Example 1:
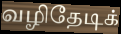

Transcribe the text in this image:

வழிதேடிக்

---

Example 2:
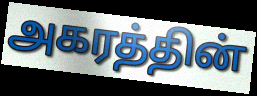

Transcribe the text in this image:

அகரத்தின்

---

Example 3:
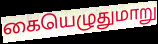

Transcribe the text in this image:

கையெழுதுமாறு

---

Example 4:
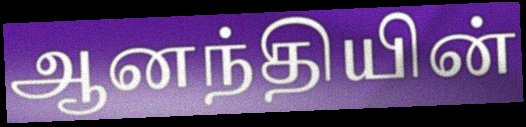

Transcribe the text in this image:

ஆனந்தியின்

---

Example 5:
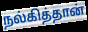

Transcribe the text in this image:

நல்கித்தான்